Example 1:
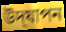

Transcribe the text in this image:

উদ্‌যাপন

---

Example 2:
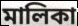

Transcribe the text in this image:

মালিকা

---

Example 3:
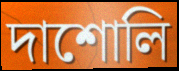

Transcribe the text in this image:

দাশোলি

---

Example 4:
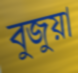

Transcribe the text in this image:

বুজুয়া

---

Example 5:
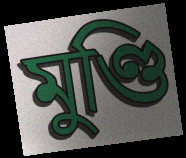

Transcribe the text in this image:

মুণ্ডি